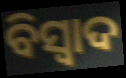
ବିସ୍ଵାଦ